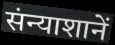
संन्याशानें